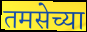
तमसेच्या